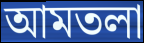
আমতলা